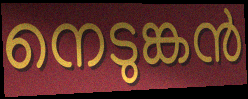
നെടുങ്കൻ